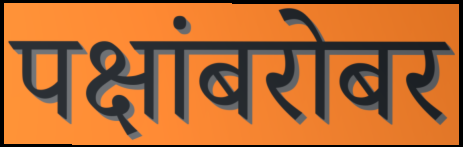
पक्षांबरोबर